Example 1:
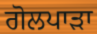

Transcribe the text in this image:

ਗੋਲਪਾੜਾ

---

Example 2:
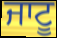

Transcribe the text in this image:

ਜਾਟੂ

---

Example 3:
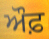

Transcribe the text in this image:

ਔਫ਼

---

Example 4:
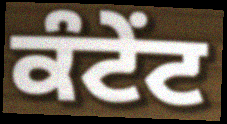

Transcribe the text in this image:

ਕੰਟੇਂਟ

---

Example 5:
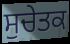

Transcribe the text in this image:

ਸੁਚੇਤਕ